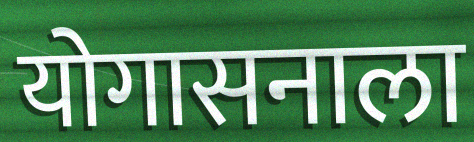
योगासनाला